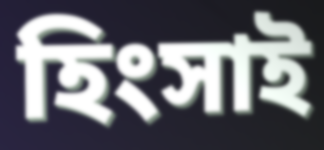
হিংসাই